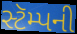
સ્ટૅમ્પની